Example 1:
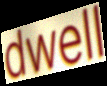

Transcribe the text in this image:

dwell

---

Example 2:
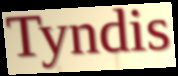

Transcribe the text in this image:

Tyndis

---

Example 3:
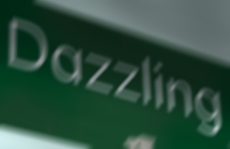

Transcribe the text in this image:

Dazzling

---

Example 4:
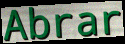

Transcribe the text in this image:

Abrar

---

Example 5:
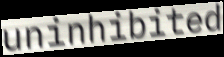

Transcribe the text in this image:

uninhibited